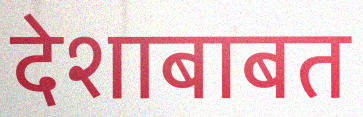
देशाबाबत